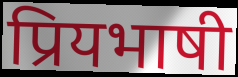
प्रियभाषी